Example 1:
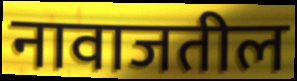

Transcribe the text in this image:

नावाजतील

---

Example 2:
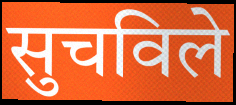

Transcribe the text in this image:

सुचविले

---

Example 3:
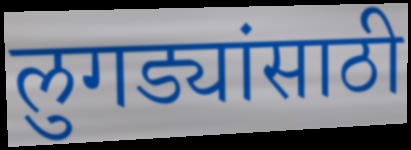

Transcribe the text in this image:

लुगड्यांसाठी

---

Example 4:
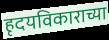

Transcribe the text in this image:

हृदयविकाराच्या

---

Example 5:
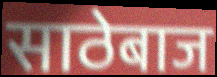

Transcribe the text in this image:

साठेबाज